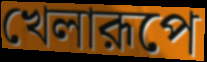
খেলারূপে